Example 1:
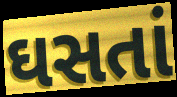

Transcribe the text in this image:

ઘસતાં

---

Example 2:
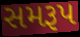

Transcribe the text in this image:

સમરૂપ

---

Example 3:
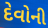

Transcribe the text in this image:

દેવોની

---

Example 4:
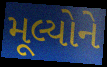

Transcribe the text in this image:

મૂલ્યોને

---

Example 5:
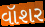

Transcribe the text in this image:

વૉશર